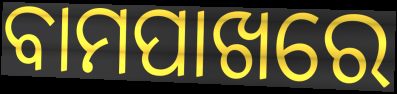
ବାମପାଖରେ